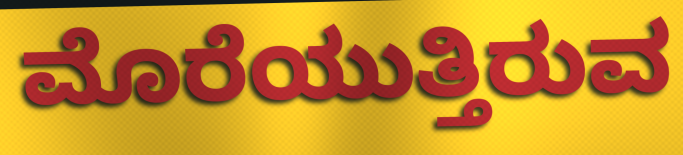
ಮೊರೆಯುತ್ತಿರುವ